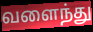
வளைந்து